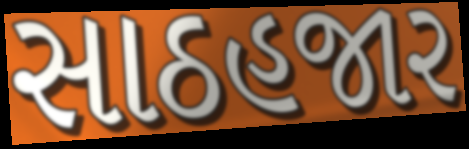
સાઠહજાર